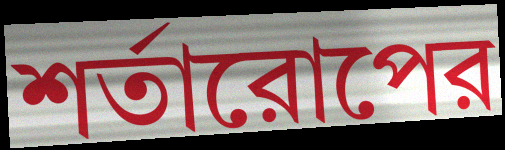
শর্তারোপের